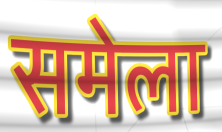
समेला